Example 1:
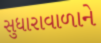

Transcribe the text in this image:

સુધારાવાળાને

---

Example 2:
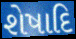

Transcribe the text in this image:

શેષાદિ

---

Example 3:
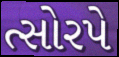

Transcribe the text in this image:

ત્સોરપે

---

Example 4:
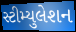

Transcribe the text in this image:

સ્ટીમ્યુલેશન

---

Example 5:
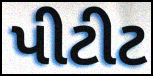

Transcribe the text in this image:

પીટીટ